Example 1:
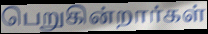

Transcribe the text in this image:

பெறுகின்றார்கள்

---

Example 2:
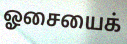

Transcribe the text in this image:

ஓசையைக்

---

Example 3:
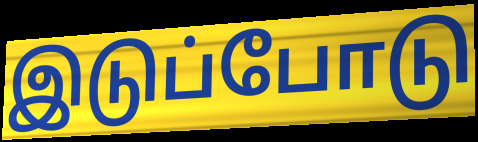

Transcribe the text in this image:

இடுப்போடு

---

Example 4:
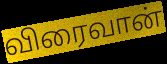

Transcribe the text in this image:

விரைவான்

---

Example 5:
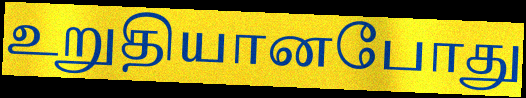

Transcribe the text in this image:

உறுதியானபோது